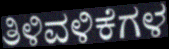
ತಿಳಿವಳಿಕೆಗಳ